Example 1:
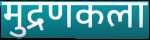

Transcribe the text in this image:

मुद्रणकला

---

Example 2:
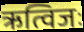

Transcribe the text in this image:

ऋत्विजः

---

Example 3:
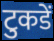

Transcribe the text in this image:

टुकडें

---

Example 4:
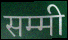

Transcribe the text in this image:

सम्मी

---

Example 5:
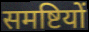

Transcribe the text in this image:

समष्टियों